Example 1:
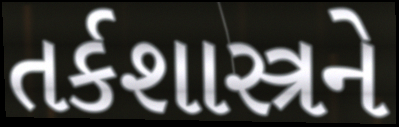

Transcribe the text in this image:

તર્કશાસ્ત્રને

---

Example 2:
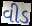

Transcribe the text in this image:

વીડ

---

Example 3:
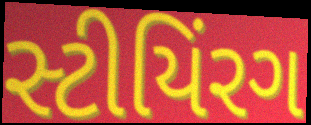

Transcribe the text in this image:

સ્ટીયિંરગ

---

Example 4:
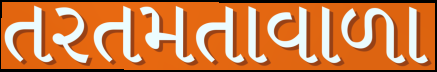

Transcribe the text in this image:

તરતમતાવાળા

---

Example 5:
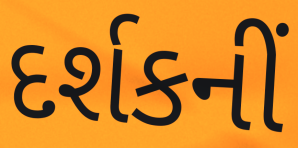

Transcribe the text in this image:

દર્શકનીં